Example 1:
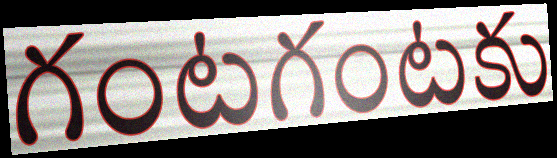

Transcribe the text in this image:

గంటగంటకు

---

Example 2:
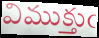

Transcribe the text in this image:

విముక్తుఁ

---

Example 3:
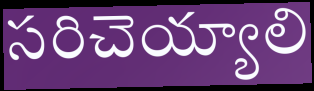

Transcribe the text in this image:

సరిచెయ్యాలి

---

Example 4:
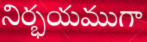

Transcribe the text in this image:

నిర్భయముగా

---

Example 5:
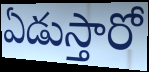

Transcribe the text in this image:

ఏడుస్తారో